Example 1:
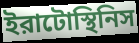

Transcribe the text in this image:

ইরাটোস্থিনিস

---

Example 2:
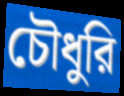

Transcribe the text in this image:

চৌধুরি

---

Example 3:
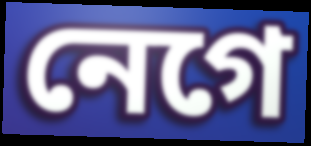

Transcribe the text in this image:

নেগে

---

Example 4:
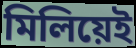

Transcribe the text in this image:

মিলিয়েই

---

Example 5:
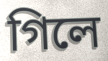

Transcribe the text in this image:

গিলে